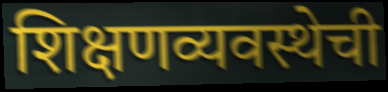
शिक्षणव्यवस्थेची